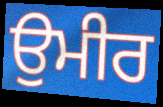
ਉਮੀਰ